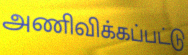
அணிவிக்கப்பட்டு